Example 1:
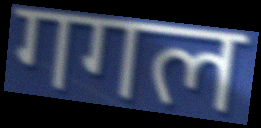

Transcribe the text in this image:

गगल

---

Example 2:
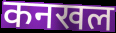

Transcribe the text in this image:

कनखल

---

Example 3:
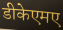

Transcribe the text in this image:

डीकेएमए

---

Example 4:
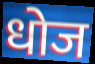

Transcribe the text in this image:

धोज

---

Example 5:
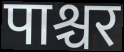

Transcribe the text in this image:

पाश्चर